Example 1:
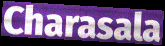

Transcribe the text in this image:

Charasala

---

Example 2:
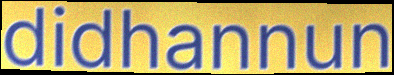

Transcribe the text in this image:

didhannun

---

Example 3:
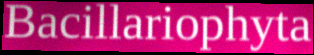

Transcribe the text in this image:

Bacillariophyta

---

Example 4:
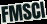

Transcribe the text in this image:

FMSCI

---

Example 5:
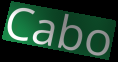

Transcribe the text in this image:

Cabo